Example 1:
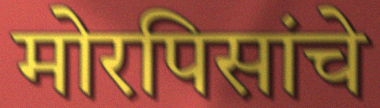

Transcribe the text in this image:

मोरपिसांचे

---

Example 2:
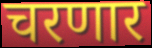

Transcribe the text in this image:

चरणार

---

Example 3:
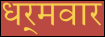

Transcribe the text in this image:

धर्मवार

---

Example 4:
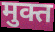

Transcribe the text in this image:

मुक्त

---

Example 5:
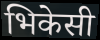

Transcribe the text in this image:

भिकेसी